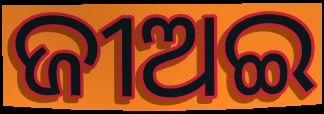
ଜୀଅଇ